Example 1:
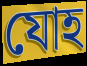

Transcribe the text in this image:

যোহ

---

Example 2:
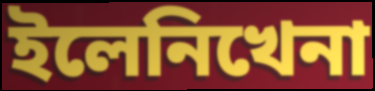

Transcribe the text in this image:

ইলেনিখেনা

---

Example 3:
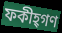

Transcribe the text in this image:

ফকীহ্গণ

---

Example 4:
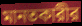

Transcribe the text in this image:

মানতকারীর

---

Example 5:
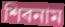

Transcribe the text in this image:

শিবনাম